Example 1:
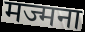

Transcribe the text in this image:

मज्मना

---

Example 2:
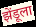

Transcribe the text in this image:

झेंडूला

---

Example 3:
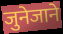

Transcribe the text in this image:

जुनेजाने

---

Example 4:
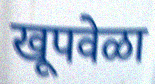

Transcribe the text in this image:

खूपवेळा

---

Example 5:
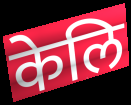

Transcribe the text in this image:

केलि